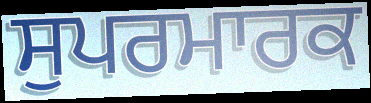
ਸੁਪਰਮਾਰਕ